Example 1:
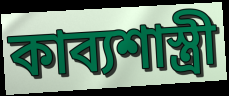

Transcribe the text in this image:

কাব্যশাস্ত্রী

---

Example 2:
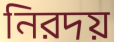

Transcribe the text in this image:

নিরদয়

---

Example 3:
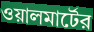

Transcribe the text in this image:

ওয়ালমার্টের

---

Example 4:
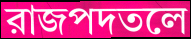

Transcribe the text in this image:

রাজপদতলে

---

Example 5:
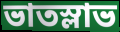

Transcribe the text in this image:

ভাতস্লাভ